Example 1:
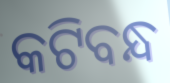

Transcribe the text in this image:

କଟିବନ୍ଧ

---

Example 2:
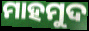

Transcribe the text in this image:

ମାହମୁଦ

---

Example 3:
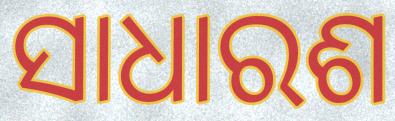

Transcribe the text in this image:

ସାଧାରଶ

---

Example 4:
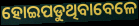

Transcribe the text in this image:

ହୋଇପଡୁଥିବାବେଳେ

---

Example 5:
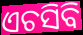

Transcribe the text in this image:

ଏଚସିବି